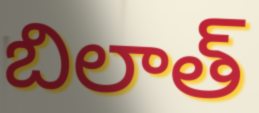
బిలాత్